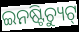
ଇନଷ୍ଟିଚ୍ୟୁଟ୍